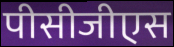
पीसीजीएस